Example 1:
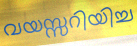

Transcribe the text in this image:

വയസ്സറിയിച്ച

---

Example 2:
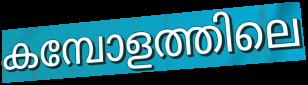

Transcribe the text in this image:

കമ്പോളത്തിലെ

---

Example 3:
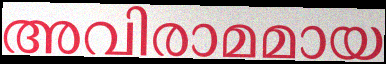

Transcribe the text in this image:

അവിരാമമായ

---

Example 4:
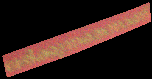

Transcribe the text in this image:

ലഭിക്കുന്നതെന്നാണ്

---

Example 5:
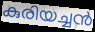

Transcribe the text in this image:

കുരിയച്ചൻ